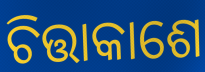
ଚିତ୍ତାକାଶେ